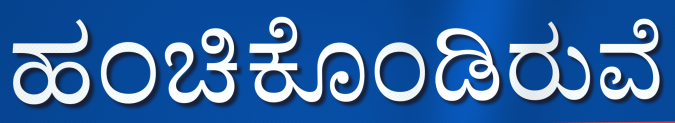
ಹಂಚಿಕೊಂಡಿರುವೆ